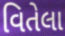
વિતેલા